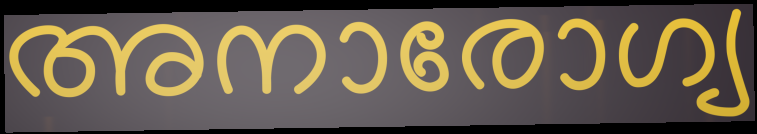
അനാരോഗ്യ